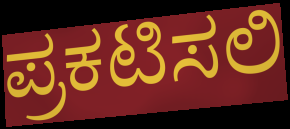
ಪ್ರಕಟಿಸಲಿ